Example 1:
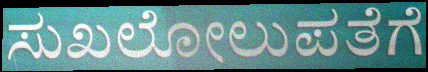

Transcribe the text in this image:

ಸುಖಲೋಲುಪತೆಗೆ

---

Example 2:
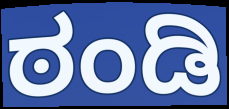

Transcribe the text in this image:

ಠಂಡಿ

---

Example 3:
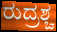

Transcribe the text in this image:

ರುದ್ರಶ್ಚ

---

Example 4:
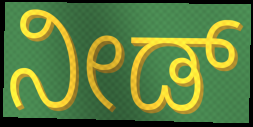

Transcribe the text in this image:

ನೀಡ್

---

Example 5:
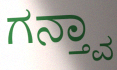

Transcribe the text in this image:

ಗನ್ತ್ವಾ